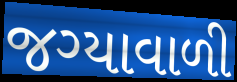
જગ્યાવાળી